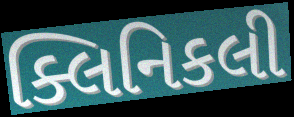
ક્લિનિકલી